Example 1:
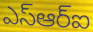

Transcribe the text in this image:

ఎస్ఆర్ఐ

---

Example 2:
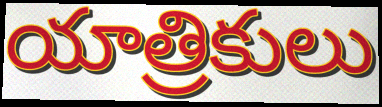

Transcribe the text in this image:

యాత్రికులు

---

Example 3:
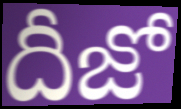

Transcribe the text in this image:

దీజో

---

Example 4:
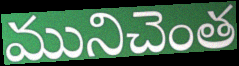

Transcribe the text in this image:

మునిచెంత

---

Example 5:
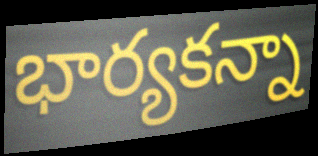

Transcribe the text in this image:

భార్యకన్నా